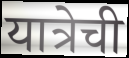
यात्रेची